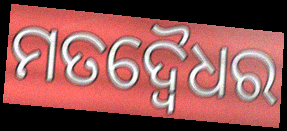
ମତଦ୍ୱୈଧର